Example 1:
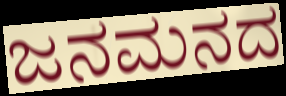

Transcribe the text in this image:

ಜನಮನದ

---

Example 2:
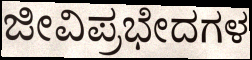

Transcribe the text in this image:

ಜೀವಿಪ್ರಭೇದಗಳ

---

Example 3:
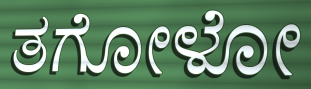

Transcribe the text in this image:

ತಗೋಳೋ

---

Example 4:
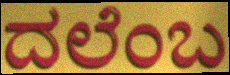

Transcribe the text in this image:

ದಲೆಂಬ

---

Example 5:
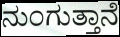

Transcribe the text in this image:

ನುಂಗುತ್ತಾನೆ